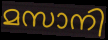
മസാനി